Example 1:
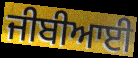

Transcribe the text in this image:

ਜੀਬੀਆਈ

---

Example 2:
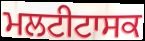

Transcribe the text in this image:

ਮਲਟੀਟਾਸਕ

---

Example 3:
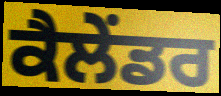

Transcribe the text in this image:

ਕੈਲੇਂਡਰ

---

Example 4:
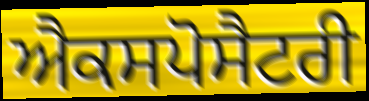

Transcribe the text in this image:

ਐਕਸਪੋਸੈਟਰੀ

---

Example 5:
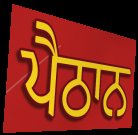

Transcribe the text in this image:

ਪੈਠਾਨ